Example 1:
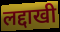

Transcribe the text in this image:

लद्दाखी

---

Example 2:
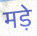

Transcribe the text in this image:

मड़े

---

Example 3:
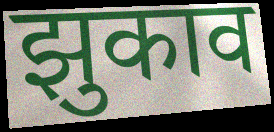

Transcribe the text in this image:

झुकाव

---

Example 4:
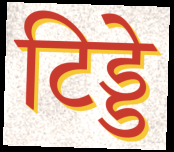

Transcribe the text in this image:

टिड्डे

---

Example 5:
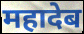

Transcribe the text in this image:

महादेब